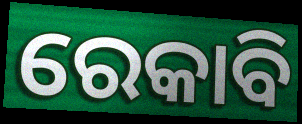
ରେକାବି